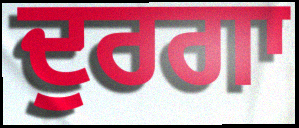
ਦੁਰਗਾ